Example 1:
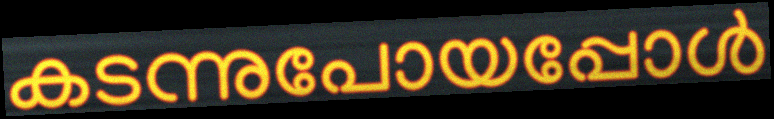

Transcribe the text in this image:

കടന്നുപോയപ്പോൾ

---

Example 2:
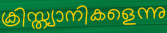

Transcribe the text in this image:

ക്രിസ്ത്യാനികളെന്നു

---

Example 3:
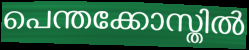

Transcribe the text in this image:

പെന്തക്കോസ്തിൽ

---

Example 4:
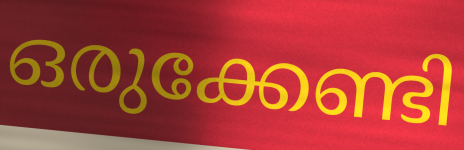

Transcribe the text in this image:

ഒരുക്കേണ്ടി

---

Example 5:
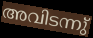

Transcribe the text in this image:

അവിടന്നു്